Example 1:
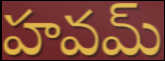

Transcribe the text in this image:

హవమ్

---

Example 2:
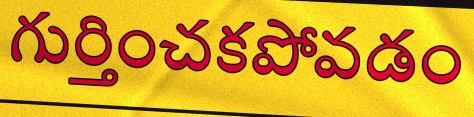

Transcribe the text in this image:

గుర్తించకపోవడం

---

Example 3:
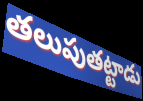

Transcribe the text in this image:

తలుపుతట్టాడు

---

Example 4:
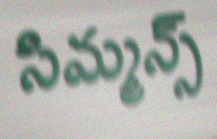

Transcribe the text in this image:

సిమ్మన్స్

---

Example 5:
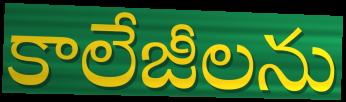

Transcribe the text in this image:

కాలేజీలను